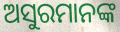
ଅସୁରମାନଙ୍କ